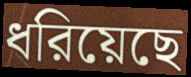
ধরিয়েছে